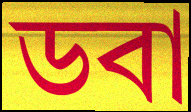
ডবা